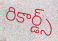
రికార్డ్స్